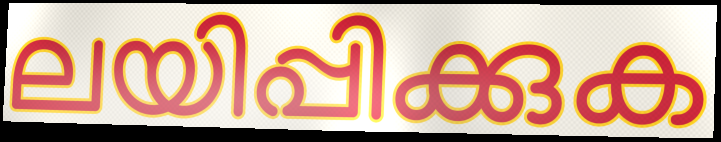
ലയിപ്പിക്കുക